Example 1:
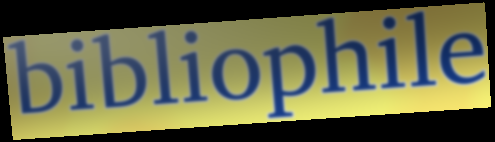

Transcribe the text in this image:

bibliophile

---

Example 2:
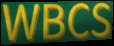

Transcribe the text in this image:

WBCS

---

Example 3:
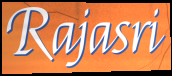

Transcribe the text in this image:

Rajasri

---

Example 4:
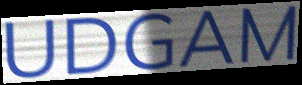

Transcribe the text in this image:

UDGAM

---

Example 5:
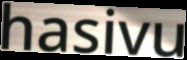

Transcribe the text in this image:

hasivu